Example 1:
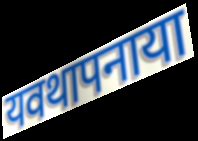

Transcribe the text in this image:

यवथापनाया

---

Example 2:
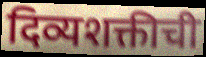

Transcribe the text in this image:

दिव्यशक्तीची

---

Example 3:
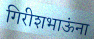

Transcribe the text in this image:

गिरीशभाऊंना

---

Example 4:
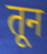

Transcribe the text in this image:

तून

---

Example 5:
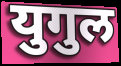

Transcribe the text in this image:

युगुल